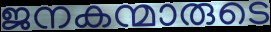
ജനകന്മാരുടെ